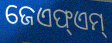
ଜେଏଫ୍ଏମ୍